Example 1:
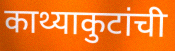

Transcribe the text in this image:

काथ्याकुटांची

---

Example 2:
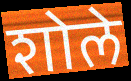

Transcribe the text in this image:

शोले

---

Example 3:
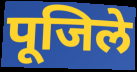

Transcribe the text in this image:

पूजिले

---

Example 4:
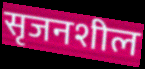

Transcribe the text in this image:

सृजनशील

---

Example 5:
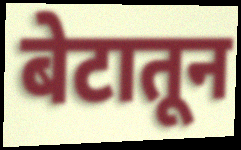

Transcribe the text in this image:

बेटातून